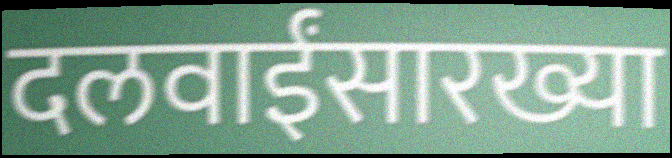
दलवाईंसारख्या